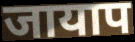
जायाप